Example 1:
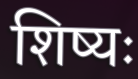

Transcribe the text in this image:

शिष्यः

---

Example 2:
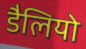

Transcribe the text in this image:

डैलियो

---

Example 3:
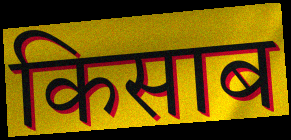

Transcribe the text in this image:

किसाब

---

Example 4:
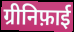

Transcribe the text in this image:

ग्रीनिफ़ाई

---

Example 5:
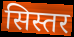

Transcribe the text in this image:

सिस्तर